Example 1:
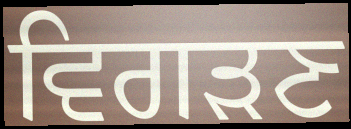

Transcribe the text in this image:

ਵਿਗੜਣ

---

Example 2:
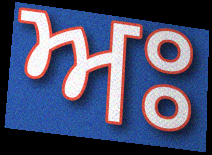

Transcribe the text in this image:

ਅਃ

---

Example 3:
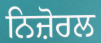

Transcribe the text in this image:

ਨਿਜ਼ੋਰਲ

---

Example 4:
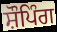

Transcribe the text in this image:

ਸ਼ੌਪਿੰਗ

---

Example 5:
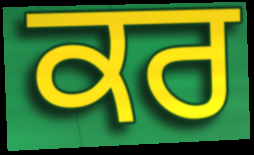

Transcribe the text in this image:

ਕਰ